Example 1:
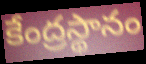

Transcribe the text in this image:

కేంద్రస్థానం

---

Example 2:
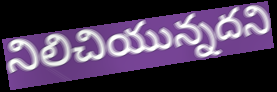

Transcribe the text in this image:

నిలిచియున్నదని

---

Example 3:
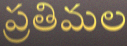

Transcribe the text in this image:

ప్రతిమల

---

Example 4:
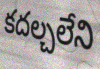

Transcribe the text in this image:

కదల్చలేని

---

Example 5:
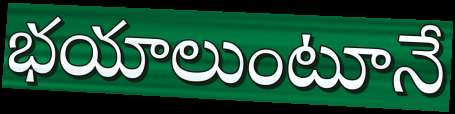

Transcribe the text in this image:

భయాలుంటూనే